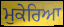
ਮੁਕੇਰਿਆ